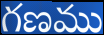
గణము